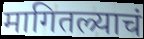
मागितल्याचं